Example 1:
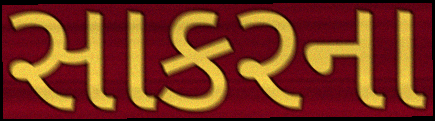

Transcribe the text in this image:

સાકરના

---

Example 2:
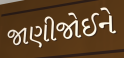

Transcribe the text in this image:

જાણીજોઈને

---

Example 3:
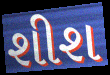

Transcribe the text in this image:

શીશ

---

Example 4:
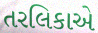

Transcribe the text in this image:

તરલિકાએ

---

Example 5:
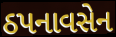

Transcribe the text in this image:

ઠપનાવસેન